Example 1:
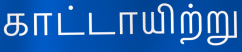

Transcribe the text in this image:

காட்டாயிற்று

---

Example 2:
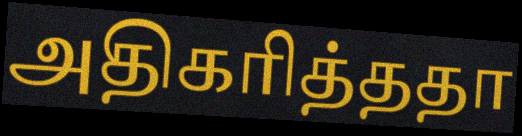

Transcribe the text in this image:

அதிகரித்ததா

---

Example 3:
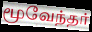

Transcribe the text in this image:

மூவேந்தர்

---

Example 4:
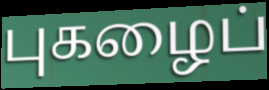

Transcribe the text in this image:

புகழைப்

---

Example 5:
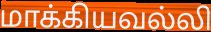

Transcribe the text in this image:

மாக்கியவல்லி